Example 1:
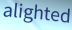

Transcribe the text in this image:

alighted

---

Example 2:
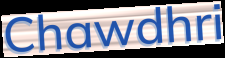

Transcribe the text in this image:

Chawdhri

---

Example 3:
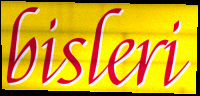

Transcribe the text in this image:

bisleri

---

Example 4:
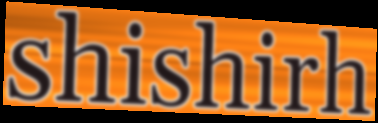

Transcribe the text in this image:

shishirh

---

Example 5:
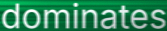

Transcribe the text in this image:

dominates